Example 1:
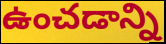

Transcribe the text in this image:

ఉంచడాన్ని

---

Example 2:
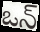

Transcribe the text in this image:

ఒన్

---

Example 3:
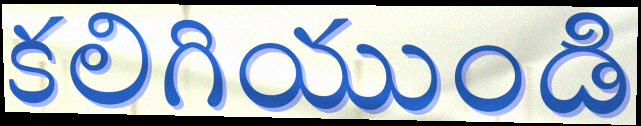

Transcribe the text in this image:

కలిగియుండి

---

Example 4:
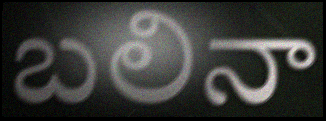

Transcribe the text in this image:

బలినా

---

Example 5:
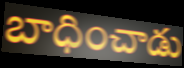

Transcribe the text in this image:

బాధించాడు